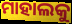
ମାହାଲକୁ